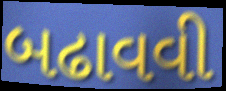
બઢાવવી